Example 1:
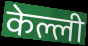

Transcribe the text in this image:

केल्ली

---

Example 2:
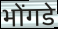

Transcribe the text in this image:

भोंगडे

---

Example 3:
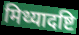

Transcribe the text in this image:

मिथ्यादष्टि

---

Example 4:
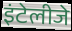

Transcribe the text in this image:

इंटेलीजे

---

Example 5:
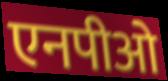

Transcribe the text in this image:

एनपीओ